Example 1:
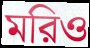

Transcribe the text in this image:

মরিও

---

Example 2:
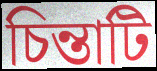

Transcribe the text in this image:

চিন্তাটি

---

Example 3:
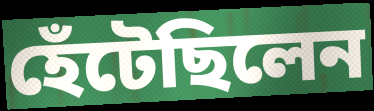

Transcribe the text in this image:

হেঁটেছিলেন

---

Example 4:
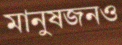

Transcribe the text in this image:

মানুষজনও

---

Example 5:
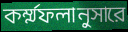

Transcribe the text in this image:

কর্ম্মফলানুসারে